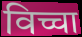
विच्चा